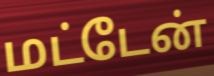
மட்டேன்